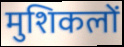
मुशिकलों